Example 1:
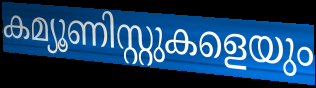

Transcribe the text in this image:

കമ്യൂണിസ്റ്റുകളെയും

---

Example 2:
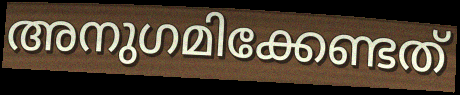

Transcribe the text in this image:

അനുഗമിക്കേണ്ടത്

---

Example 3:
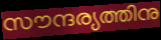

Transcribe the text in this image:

സൗന്ദര്യത്തിനു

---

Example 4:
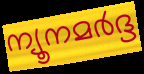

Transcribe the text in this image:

ന്യൂനമർദ്ദ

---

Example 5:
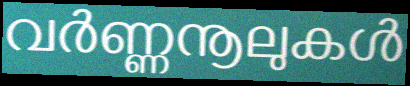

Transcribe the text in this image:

വർണ്ണനൂലുകൾ